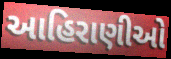
આહિરાણીઓ